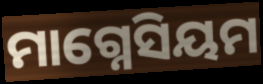
ମାଗ୍ନେସିୟମ